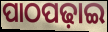
ପାଠପଢ଼ାଇ